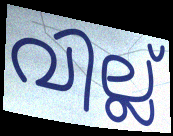
വില്ല്